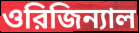
ওরিজিন্যাল